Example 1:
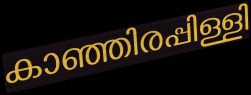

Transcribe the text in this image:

കാഞ്ഞിരപ്പിള്ളി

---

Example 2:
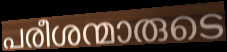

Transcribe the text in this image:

പരീശന്മാരുടെ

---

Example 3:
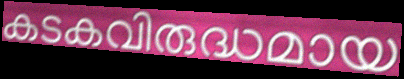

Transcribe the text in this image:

കടകവിരുദ്ധമായ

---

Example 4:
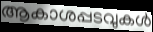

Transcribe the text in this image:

ആകാശപ്പടവുകൾ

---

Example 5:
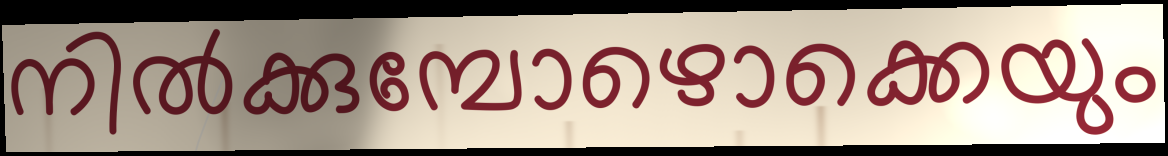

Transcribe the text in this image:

നിൽക്കുമ്പോഴൊക്കെയും